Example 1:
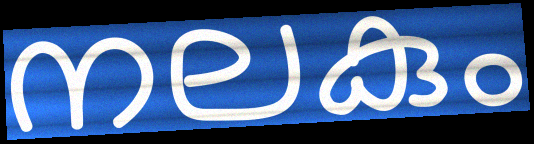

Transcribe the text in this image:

നലകും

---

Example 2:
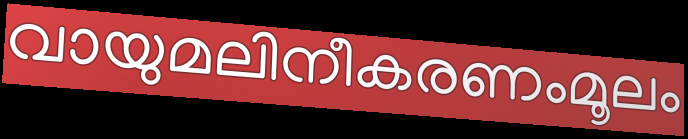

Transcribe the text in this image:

വായുമലിനീകരണംമൂലം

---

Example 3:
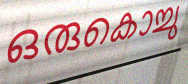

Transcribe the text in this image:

ഒരുകൊച്ചു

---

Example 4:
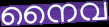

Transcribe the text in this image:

നൈവ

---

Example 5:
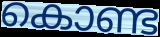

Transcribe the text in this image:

കൊണ്ട